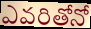
ఎవరితోనో